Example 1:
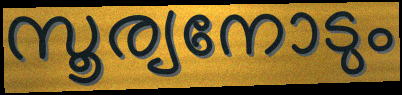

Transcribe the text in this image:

സൂര്യനോടും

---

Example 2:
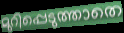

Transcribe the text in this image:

മുറിപ്പെടുത്താതെ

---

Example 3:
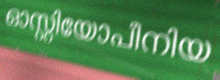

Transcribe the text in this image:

ഓസ്റ്റിയോപീനിയ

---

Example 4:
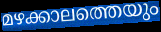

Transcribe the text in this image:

മഴക്കാലത്തെയും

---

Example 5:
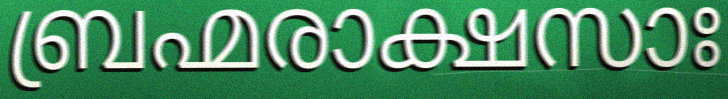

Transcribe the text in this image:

ബ്രഹ്മരാക്ഷസാഃ